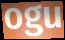
ogu